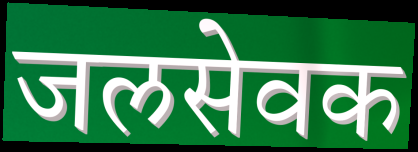
जलसेवक